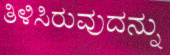
ತಿಳಿಸಿರುವುದನ್ನು